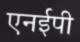
एनईपी